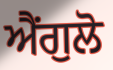
ਐਂਗੁਲੋ